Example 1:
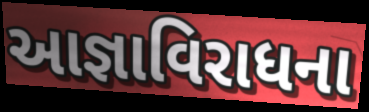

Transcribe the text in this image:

આજ્ઞાવિરાધના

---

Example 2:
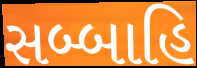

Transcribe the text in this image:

સબ્બાહિ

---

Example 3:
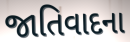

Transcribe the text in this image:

જાતિવાદના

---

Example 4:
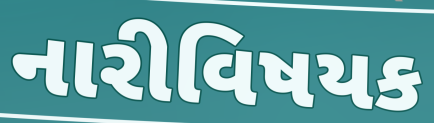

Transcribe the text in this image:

નારીવિષયક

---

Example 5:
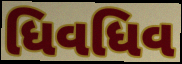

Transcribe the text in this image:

ધિવધિવ